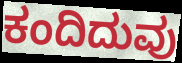
ಕಂದಿದುವು